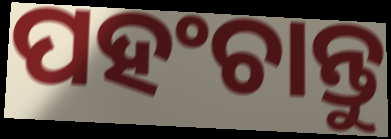
ପହଂଚାନ୍ତୁ